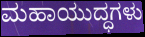
ಮಹಾಯುದ್ಧಗಳು